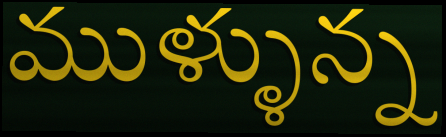
ముళ్ళున్న